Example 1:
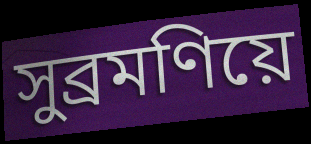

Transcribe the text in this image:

সুব্ৰমণিয়ে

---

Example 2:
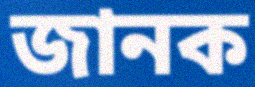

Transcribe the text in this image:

জানক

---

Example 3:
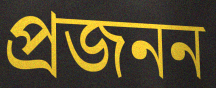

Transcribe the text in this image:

প্ৰজনন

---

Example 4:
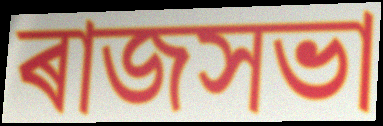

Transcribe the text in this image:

ৰাজসভা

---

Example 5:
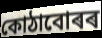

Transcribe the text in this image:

কোঠাবোৰৰ